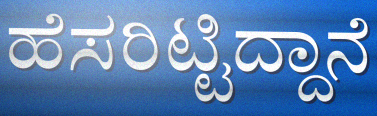
ಹೆಸರಿಟ್ಟಿದ್ದಾನೆ